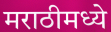
मराठीमध्ये